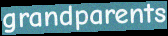
grandparents